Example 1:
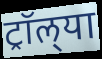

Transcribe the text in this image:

ट्रॉल्या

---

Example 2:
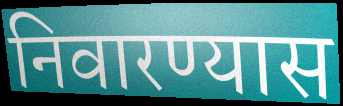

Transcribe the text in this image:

निवारण्यास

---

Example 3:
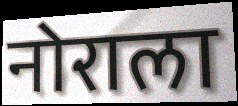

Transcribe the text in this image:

नोराला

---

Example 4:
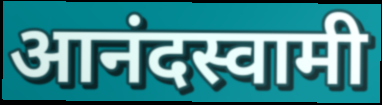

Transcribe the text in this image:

आनंदस्वामी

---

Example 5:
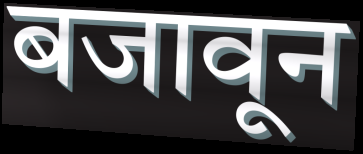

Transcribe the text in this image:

बजावून